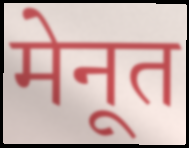
मेनूत